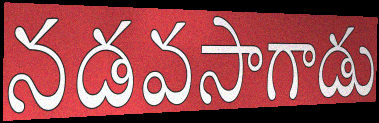
నడవసాగాడు